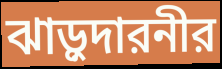
ঝাড়ুদারনীর